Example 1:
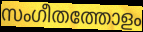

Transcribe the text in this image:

സംഗീതത്തോളം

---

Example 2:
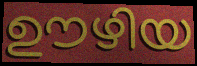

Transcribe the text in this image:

ഊഴിയ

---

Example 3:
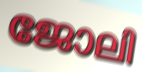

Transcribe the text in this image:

ജോലി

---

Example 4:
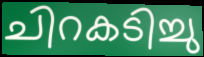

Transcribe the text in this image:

ചിറകടിച്ചു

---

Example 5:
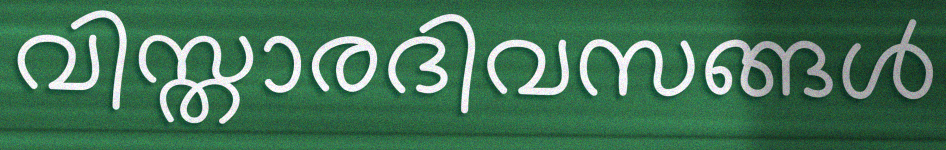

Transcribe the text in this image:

വിസ്താരദിവസങ്ങൾ